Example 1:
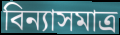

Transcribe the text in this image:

বিন্যাসমাত্র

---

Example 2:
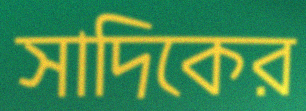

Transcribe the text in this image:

সাদিকের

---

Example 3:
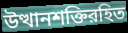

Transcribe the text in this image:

উত্থানশক্তিরহিত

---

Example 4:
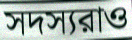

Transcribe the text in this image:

সদস্যরাও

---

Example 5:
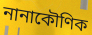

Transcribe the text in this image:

নানাকৌণিক